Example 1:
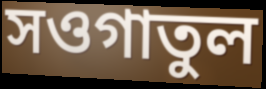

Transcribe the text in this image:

সওগাতুল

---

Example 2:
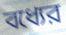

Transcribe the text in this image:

বধ্যের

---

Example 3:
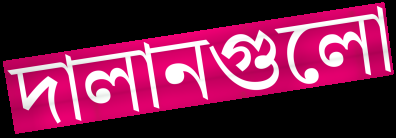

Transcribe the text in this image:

দালানগুলো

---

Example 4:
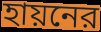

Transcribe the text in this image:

হায়নের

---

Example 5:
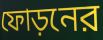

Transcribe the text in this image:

ফোড়নের